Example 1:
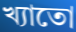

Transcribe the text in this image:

খ্যাতো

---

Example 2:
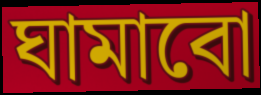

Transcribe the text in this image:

ঘামাবো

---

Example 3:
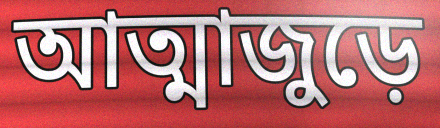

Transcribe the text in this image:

আত্মাজুড়ে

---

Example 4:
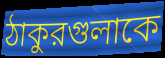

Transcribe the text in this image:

ঠাকুরগুলাকে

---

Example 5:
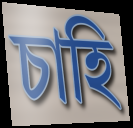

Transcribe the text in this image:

চাহি